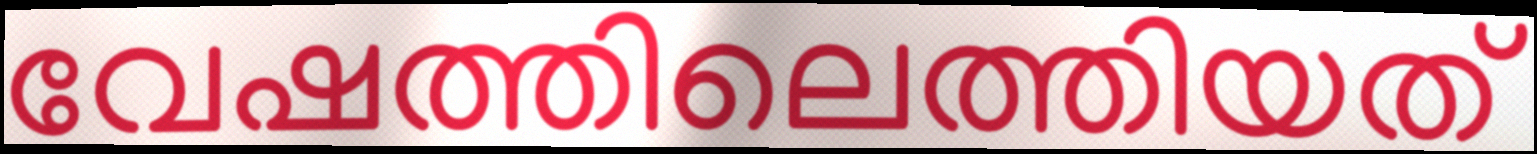
വേഷത്തിലെത്തിയത്